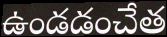
ఉండడంచేత